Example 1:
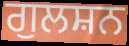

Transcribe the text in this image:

ਗੁਲਸ਼ਨ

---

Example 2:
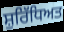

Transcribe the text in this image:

ਸ਼ੁਰਿੱਧਿਅਤ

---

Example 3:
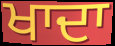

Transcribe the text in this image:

ਖਾਦਾ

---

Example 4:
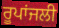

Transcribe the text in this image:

ਰੂਪਾਂਜਲੀ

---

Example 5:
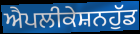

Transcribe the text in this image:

ਐਪਲੀਕੇਸ਼ਨਹੁੱਡ